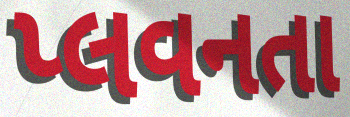
પ્લવનતા